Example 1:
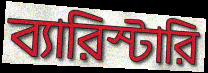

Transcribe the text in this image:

ব্যারিস্টারি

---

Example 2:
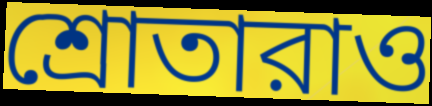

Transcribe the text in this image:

শ্রোতারাও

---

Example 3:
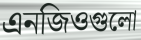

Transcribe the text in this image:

এনজিওগুলো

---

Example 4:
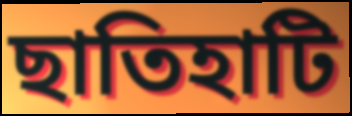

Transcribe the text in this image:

ছাতিহাটি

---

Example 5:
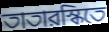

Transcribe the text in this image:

তাতারস্কিতে